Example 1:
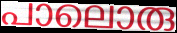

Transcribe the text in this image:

പാലൊരു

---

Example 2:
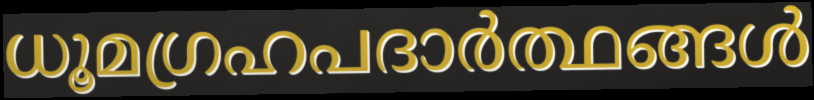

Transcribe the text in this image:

ധൂമഗ്രഹപദാർത്ഥങ്ങൾ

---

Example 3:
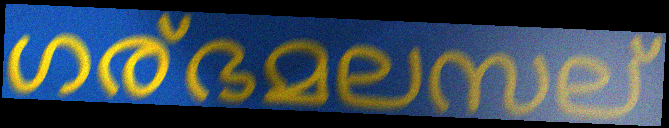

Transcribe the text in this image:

ഗര്ഭമലസല്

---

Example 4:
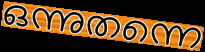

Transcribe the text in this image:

ഒന്നുതന്നെ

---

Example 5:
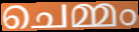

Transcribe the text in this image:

ചെമ്മം